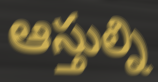
ఆస్తుల్ని